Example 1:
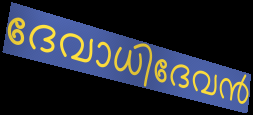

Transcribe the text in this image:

ദേവാധിദേവൻ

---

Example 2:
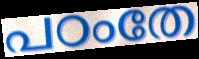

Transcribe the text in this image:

പഠംതേ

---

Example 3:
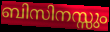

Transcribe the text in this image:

ബിസിനസ്സും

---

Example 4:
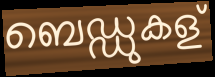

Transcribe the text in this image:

ബെഡ്ഡുകള്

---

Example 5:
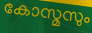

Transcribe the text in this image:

കോസ്മസും